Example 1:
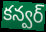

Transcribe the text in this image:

కన్వర్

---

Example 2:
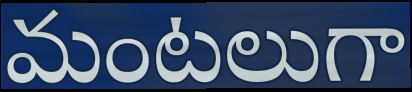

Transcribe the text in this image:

మంటలుగా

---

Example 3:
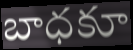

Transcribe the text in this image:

బాధకూ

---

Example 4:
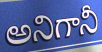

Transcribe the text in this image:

అనిగానీ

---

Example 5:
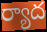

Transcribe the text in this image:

ర్యాద